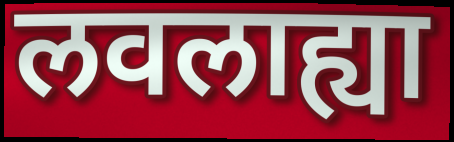
लवलाह्या